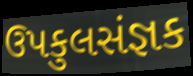
ઉપકુલસંજ્ઞક